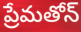
ప్రేమతోన్